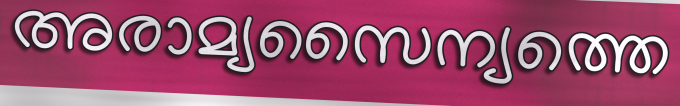
അരാമ്യസൈന്യത്തെ